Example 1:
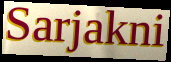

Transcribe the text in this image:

Sarjakni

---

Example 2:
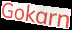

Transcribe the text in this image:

Gokarn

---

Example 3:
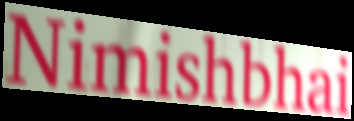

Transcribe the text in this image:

Nimishbhai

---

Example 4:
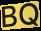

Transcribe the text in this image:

BQ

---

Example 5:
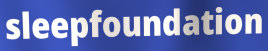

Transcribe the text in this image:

sleepfoundation